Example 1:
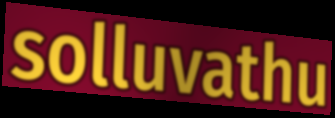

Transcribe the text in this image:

solluvathu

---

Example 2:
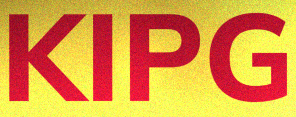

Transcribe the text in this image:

KIPG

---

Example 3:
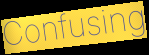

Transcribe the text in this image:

Confusing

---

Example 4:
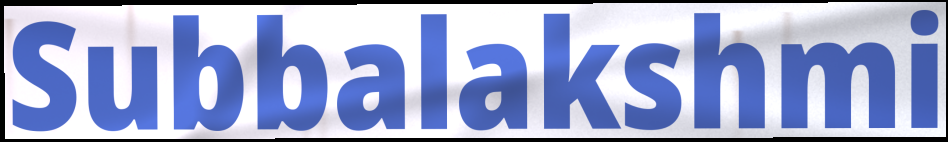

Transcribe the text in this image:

Subbalakshmi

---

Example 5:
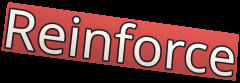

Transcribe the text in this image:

Reinforce